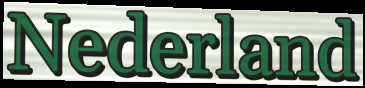
Nederland